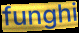
funghi